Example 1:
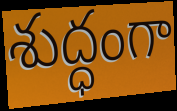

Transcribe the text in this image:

శుద్ధంగా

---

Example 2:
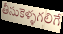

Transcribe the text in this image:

తీసుకెళ్ళగలిగే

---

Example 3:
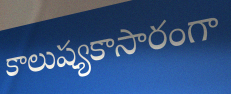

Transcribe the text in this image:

కాలుష్యకాసారంగా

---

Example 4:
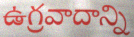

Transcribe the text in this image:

ఉగ్రవాదాన్ని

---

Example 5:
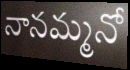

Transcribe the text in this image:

నానమ్మనో